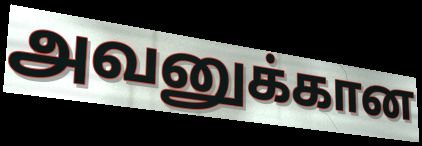
அவனுக்கான